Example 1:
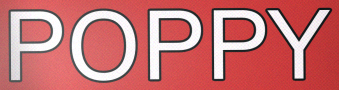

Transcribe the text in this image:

POPPY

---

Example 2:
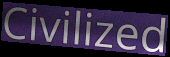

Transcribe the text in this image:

Civilized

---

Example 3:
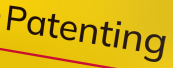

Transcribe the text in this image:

Patenting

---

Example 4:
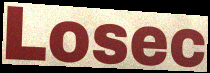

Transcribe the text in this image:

Losec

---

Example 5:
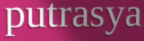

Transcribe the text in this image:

putrasya